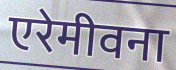
एरेमीवना